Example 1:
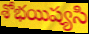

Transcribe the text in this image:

శోభయిష్యసి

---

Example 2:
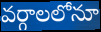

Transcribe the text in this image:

వర్గాలలోనూ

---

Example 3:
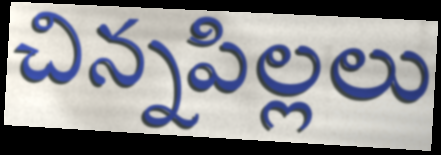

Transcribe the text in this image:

చిన్నపిల్లలు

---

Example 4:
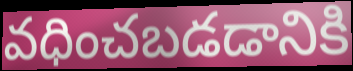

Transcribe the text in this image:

వధించబడడానికి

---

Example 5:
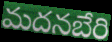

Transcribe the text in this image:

మదనబేరి